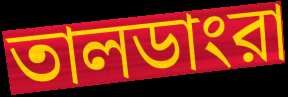
তালডাংরা